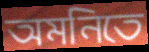
অমনিতে